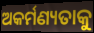
ଅକର୍ମଣ୍ୟତାକୁ